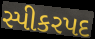
સ્પીકરપદ